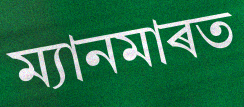
ম্যানমাৰত